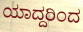
ಯಾದ್ದರಿಂದ